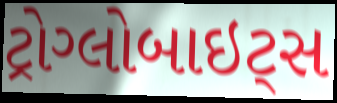
ટ્રોગ્લોબાઇટ્સ